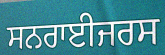
ਸਨਰਾਈਜਰਸ